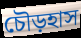
চৌড়হাস